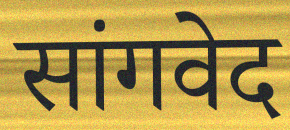
सांगवेद